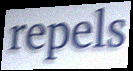
repels